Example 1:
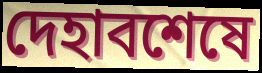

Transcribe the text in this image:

দেহাবশেষে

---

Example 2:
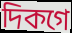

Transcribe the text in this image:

দিকগে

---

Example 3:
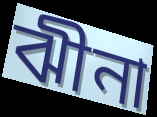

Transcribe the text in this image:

ঝীনা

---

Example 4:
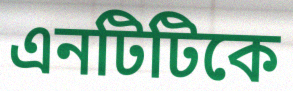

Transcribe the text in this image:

এনটিটিকে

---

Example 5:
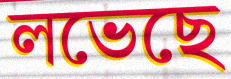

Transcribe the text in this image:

লভেছে